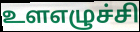
உளஎழுச்சி